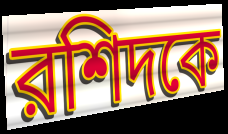
রশিদকে